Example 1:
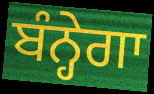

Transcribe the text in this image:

ਬੰਨ੍ਹੇਗਾ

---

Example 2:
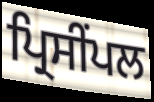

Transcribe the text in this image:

ਪ੍ਰਿਸੀਂਪਲ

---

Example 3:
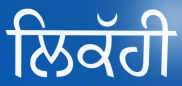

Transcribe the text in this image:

ਲਿਕੱਹੀ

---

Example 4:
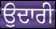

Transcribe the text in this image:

ਉਦਾਰੀ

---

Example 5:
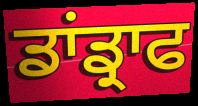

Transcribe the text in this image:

ਡਾਂਡ੍ਰਾਫ